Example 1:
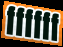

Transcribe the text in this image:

ffffff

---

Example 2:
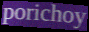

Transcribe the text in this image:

porichoy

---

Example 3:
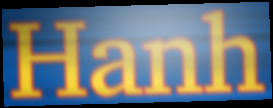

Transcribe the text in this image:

Hanh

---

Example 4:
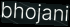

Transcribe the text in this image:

bhojani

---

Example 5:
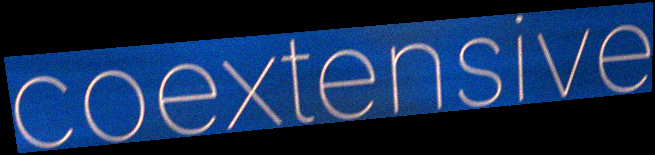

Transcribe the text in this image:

coextensive